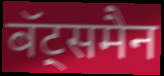
बॅट्समैन